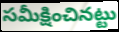
సమీక్షించినట్టు